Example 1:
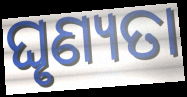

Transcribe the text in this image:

ଘୃଣ୍ୟତା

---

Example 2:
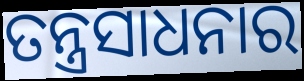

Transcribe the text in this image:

ତନ୍ତ୍ରସାଧନାର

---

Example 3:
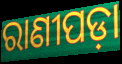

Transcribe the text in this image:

ରାଣୀପଡ଼ା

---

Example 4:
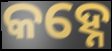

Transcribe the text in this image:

କହ୍ନେ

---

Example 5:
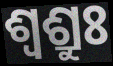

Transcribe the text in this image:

ଶ୍ଵଶ୍ରୁଃ